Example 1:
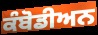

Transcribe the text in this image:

ਕੰਬੋਡੀਅਨ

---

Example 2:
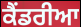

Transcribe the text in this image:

ਕੈਂਡਰੀਆ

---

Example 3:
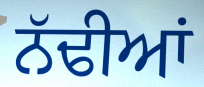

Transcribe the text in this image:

ਨੱਢੀਆਂ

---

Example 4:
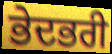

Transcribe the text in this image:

ਭੇਦਭਰੀ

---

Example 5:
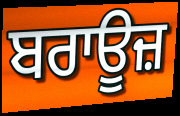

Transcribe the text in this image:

ਬਰਾਊਜ਼